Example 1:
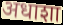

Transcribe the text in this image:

अधाशा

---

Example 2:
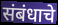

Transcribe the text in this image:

संबंधाचे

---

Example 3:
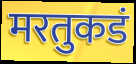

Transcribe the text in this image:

मरतुकडं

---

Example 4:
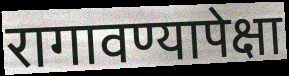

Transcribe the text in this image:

रागावण्यापेक्षा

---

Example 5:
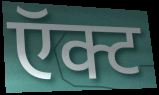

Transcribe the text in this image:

ऍक्ट